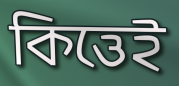
কিত্তেই